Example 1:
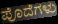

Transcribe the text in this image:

ಪೊದೆಗಳು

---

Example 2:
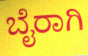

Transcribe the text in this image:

ಬೈರಾಗಿ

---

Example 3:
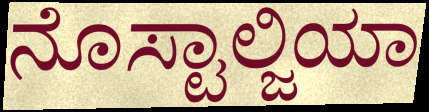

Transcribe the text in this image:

ನೊಸ್ಟಾಲ್ಜಿಯಾ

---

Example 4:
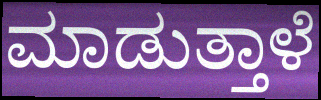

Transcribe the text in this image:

ಮಾಡುತ್ತಾಳೆ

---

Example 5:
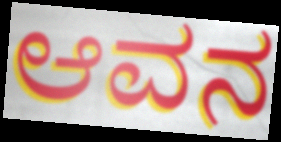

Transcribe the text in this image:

ಆವನ